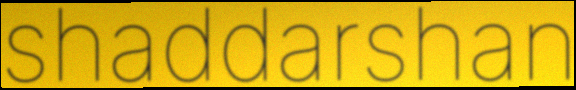
shaddarshan